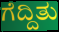
ಗೆದ್ದಿತು